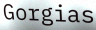
Gorgias